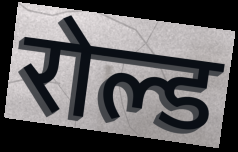
रोल्ड